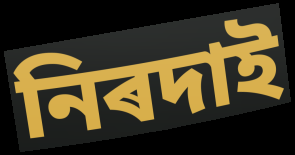
নিৰদাই